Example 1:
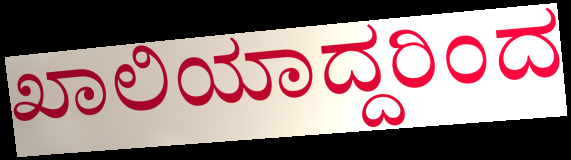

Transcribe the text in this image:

ಖಾಲಿಯಾದ್ದರಿಂದ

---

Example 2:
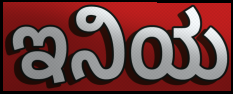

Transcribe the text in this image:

ಇನಿಯ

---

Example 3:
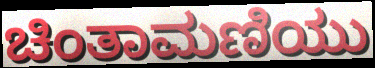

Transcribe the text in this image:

ಚಿಂತಾಮಣಿಯು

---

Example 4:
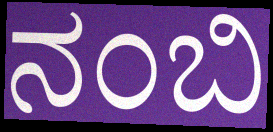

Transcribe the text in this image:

ನಂಬಿ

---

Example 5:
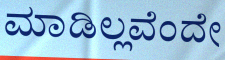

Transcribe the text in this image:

ಮಾಡಿಲ್ಲವೆಂದೇ